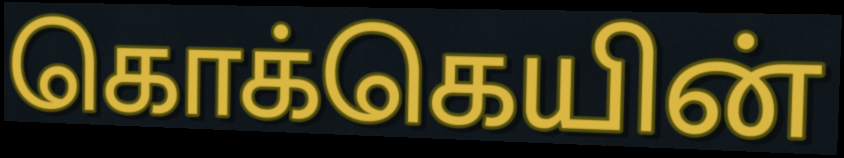
கொக்கெயின்